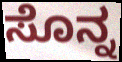
ಸೊನ್ನ